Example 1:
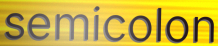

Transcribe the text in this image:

semicolon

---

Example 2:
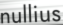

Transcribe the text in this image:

nullius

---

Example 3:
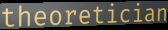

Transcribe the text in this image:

theoretician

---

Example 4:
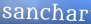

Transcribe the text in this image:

sanchar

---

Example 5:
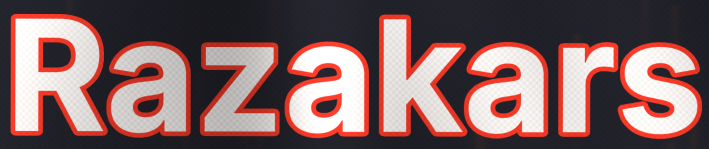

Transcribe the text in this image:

Razakars